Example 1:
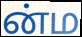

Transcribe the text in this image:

ன்ம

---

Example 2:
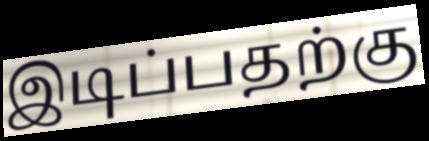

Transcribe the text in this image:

இடிப்பதற்கு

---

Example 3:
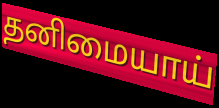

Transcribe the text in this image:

தனிமையாய்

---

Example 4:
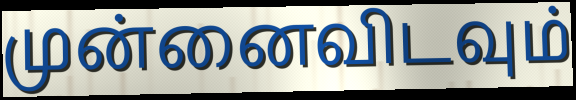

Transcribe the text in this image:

முன்னைவிடவும்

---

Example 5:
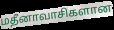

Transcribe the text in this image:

மதீனாவாசிகளான